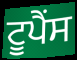
ਟੂਪੈਂਸ